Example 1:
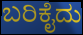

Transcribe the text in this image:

ಬರಿಕೈದು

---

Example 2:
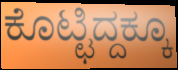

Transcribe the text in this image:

ಕೊಟ್ಟಿದ್ದಕ್ಕೂ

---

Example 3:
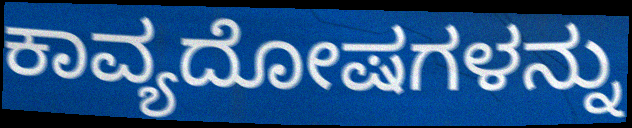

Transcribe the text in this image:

ಕಾವ್ಯದೋಷಗಳನ್ನು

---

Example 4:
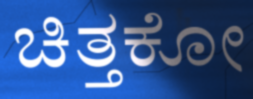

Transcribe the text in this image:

ಚಿತ್ತಕೋ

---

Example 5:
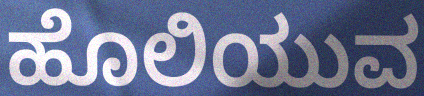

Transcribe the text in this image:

ಹೊಲಿಯುವ